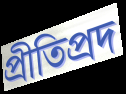
প্রীতিপ্রদ